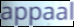
appaal